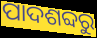
ପାଦଶବ୍ଦରୁ